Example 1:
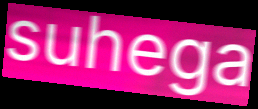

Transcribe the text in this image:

suhega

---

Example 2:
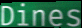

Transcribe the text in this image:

Dines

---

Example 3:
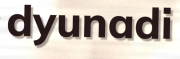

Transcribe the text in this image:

dyunadi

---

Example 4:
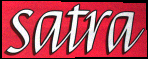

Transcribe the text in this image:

satra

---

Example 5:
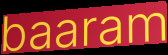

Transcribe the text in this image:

baaram